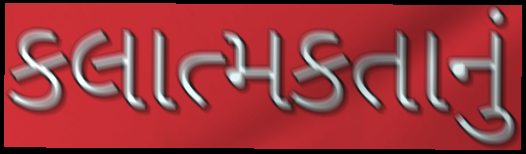
કલાત્મકતાનું